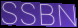
SSBN